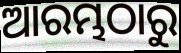
ଆରମ୍ଭଠାରୁ